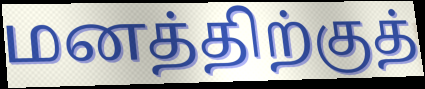
மனத்திற்குத்